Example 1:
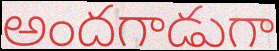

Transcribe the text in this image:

అందగాడుగా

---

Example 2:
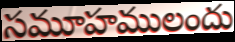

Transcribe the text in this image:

సమూహములందు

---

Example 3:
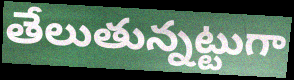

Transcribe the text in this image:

తేలుతున్నట్టుగా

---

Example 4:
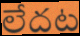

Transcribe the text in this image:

లేదట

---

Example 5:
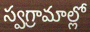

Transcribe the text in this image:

స్వగ్రామాల్లో